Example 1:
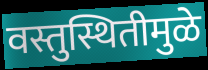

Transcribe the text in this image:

वस्तुस्थितीमुळे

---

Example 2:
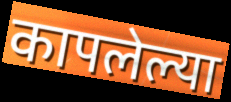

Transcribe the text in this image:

कापलेल्या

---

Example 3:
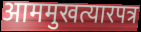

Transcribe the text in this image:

आममुखत्यारपत्र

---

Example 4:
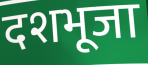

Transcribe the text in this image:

दशभूजा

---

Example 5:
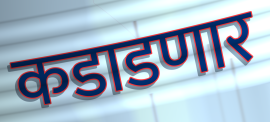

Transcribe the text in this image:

कडाडणार